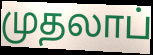
முதலாப்